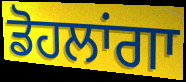
ਡੋਹਲਾਂਗਾ